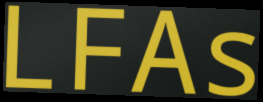
LFAs